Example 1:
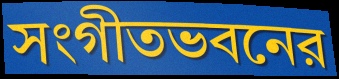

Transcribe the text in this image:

সংগীতভবনের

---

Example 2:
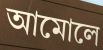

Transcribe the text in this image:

আমোলে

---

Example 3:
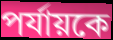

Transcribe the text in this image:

পর্যায়কে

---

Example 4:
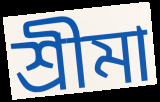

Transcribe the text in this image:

শ্রীমা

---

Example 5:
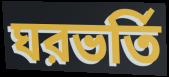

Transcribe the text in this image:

ঘরভর্তি